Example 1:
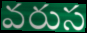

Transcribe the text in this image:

వరుస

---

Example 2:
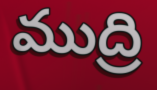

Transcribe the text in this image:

ముద్రి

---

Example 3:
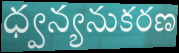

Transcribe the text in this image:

ధ్వన్యనుకరణ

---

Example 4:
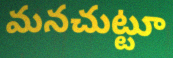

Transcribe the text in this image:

మనచుట్టూ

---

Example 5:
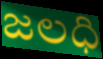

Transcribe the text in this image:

జలధి